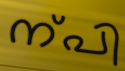
ന്പി